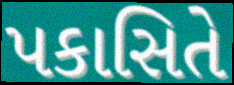
પકાસિતે